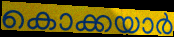
കൊക്കയാർ